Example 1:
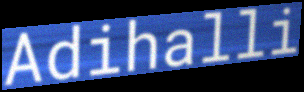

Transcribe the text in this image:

Adihalli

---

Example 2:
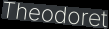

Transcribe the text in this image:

Theodoret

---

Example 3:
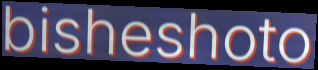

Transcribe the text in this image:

bisheshoto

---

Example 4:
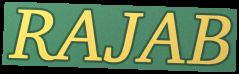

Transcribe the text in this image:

RAJAB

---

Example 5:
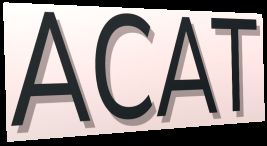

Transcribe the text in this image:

ACAT